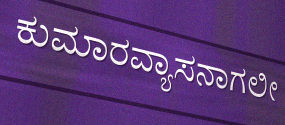
ಕುಮಾರವ್ಯಾಸನಾಗಲೀ